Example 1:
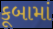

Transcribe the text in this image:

કૂબામાં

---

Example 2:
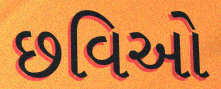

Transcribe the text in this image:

છવિઓ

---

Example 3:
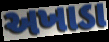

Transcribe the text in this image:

અખાડા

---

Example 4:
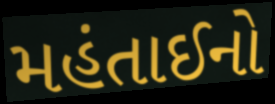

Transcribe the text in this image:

મહંતાઈનો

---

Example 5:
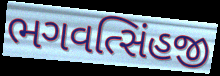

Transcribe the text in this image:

ભગવત્સિંહજી